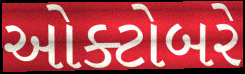
ઓક્ટોબરે